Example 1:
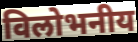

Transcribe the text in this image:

विलोभनीय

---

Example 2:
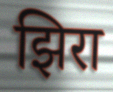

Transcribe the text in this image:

झिरा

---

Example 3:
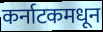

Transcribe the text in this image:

कर्नाटकमधून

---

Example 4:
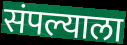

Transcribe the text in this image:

संपल्याला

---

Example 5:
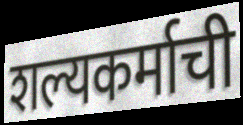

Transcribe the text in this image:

शल्यकर्माची